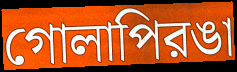
গোলাপিরঙা